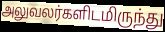
அலுவலர்களிடமிருந்து